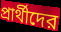
প্রার্থীদের